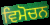
ਵਿਮੋਚਨ